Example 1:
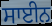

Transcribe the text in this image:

ਸਾਈਨ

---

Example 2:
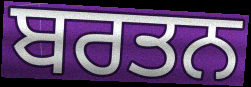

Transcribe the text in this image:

ਬਰਤਨ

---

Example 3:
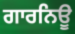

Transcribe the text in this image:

ਗਾਰਨਿਊ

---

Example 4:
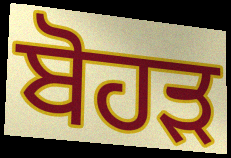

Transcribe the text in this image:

ਬੋਹੜ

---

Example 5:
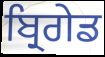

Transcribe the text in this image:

ਬ੍ਰਿਗੇਡ